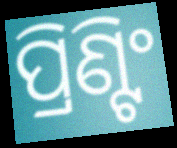
ପ୍ରିଣ୍ଟିଂ